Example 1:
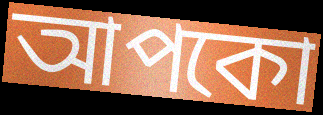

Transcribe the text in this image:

আপকো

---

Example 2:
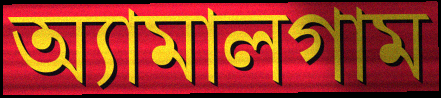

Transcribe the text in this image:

অ্যামালগাম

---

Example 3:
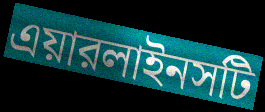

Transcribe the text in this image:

এয়ারলাইনসটি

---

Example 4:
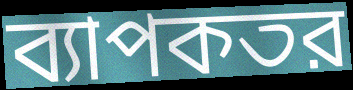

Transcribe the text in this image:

ব্যাপকতর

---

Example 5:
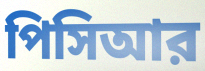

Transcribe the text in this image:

পিসিআর